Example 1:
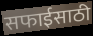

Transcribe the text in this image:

सफाईसाठी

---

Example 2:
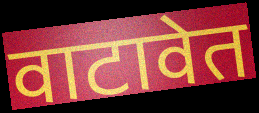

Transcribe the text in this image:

वाटावेत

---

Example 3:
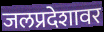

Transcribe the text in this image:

जलप्रदेशावर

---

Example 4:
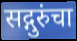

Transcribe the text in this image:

सद्गुरुंचा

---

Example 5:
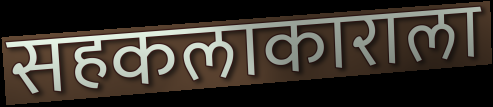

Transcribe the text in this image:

सहकलाकाराला